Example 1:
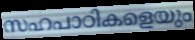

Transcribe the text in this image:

സഹപാഠികളെയും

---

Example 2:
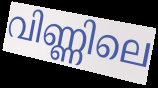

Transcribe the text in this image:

വിണ്ണിലെ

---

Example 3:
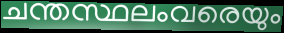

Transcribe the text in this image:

ചന്തസ്ഥലംവരെയും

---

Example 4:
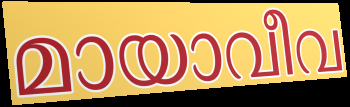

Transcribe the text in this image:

മായാവീവ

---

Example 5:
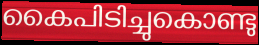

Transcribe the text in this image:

കൈപിടിച്ചുകൊണ്ടു